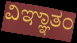
ವಿಞ್ಞಾತಂ